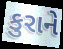
કુરાને